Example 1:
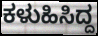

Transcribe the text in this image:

ಕಳುಹಿಸಿದ್ದ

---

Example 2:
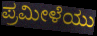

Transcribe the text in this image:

ಪ್ರಮೀಳೆಯು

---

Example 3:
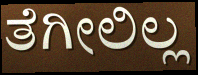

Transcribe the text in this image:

ತೆಗೀಲಿಲ್ಲ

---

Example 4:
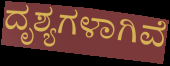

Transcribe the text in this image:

ದೃಶ್ಯಗಳಾಗಿವೆ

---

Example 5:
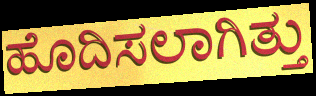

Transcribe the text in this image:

ಹೊದಿಸಲಾಗಿತ್ತು